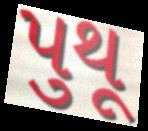
પુથૂ